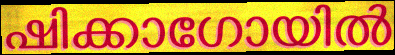
ഷിക്കാഗോയിൽ